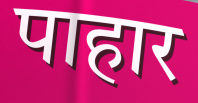
पाहार